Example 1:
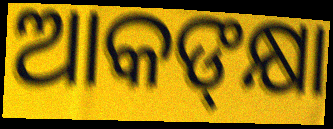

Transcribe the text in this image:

ଆକଙ୍‌କ୍ଷା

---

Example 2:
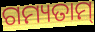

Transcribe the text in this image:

ଗମ୍ୟତାମ୍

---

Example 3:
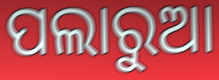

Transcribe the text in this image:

ପଲାରୁଆ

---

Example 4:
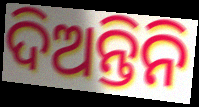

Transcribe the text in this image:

ଦିଅନ୍ତିନି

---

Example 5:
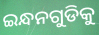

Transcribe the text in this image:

ଇନ୍ଧନଗୁଡିକୁ